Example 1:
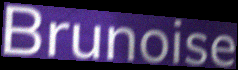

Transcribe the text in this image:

Brunoise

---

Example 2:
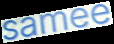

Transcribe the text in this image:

samee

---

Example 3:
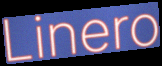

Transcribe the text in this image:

Linero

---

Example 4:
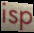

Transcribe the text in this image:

isp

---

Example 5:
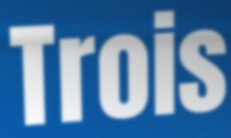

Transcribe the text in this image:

Trois